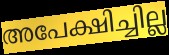
അപേക്ഷിച്ചില്ല